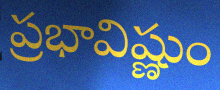
ప్రభావిష్ణుం